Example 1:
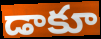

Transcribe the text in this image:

డాకూ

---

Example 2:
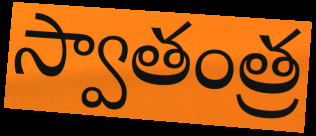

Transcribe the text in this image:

స్వాతంత్ర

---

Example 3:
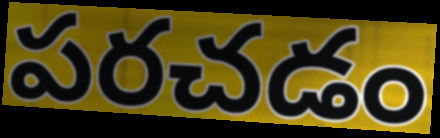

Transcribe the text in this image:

పరచడం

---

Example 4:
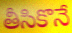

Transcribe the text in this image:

తీసికొనే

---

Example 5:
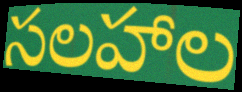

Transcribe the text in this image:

సలహాల